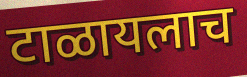
टाळायलाच